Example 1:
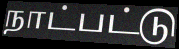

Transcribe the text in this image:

நாட்பட்டு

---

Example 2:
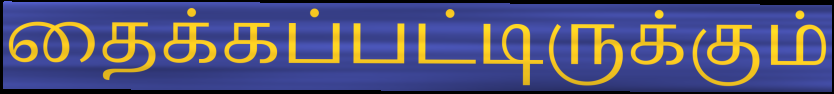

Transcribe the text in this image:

தைக்கப்பட்டிருக்கும்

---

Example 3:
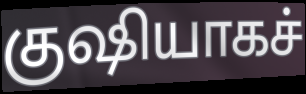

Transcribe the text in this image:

குஷியாகச்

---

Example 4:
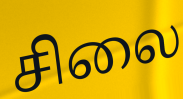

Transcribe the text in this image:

சிலை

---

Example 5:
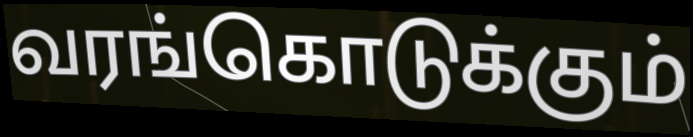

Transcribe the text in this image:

வரங்கொடுக்கும்